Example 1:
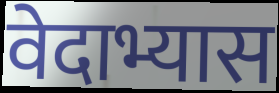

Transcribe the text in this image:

वेदाभ्यास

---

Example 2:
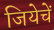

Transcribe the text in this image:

जियेचें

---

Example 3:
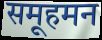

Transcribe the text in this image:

समूहमन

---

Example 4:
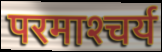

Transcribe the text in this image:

परमाश्चर्य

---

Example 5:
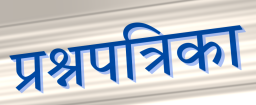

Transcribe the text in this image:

प्रश्नपत्रिका